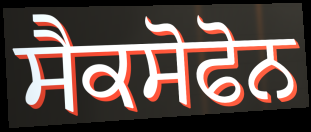
ਸੈਕਸੋਫੋਨ